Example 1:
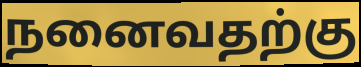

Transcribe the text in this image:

நனைவதற்கு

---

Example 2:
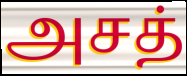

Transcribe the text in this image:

அசத்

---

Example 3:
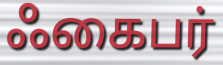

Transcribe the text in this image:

ஃகைபர்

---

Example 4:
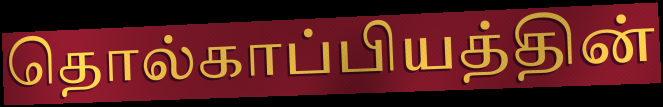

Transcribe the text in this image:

தொல்காப்பியத்தின்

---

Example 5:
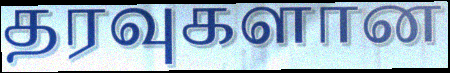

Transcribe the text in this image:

தரவுகளான